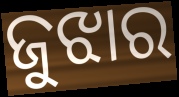
ଜୁଝାର